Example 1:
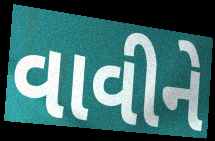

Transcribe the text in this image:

વાવીને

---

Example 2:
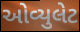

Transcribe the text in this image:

ઓવ્યુલેટ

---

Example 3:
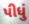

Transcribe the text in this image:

પીધું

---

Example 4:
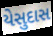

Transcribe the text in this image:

યેસુદાસ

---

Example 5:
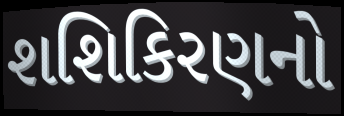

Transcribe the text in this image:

શશિકિરણનો